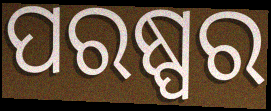
ପରଷ୍ପର